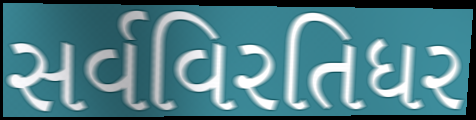
સર્વવિરતિધર